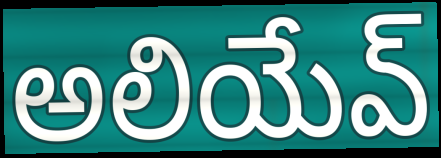
అలియేవ్